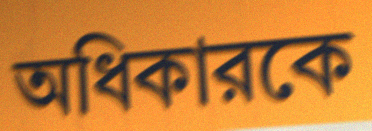
অধিকারকে